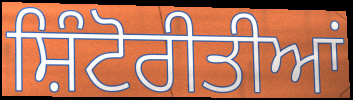
ਸ਼ਿੰਟੋਰੀਤੀਆਂ